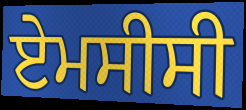
ਏਮਸੀਸੀ